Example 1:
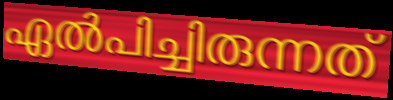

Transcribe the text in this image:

ഏൽപിച്ചിരുന്നത്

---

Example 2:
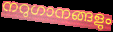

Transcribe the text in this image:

നറുഗാനങ്ങളും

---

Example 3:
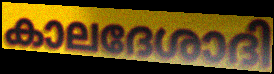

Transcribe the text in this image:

കാലദേശാദി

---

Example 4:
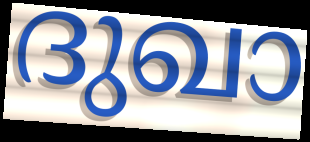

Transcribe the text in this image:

ദുഖാ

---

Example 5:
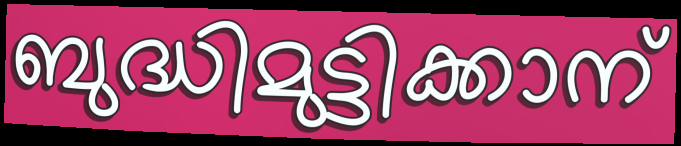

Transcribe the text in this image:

ബുദ്ധിമുട്ടിക്കാന്